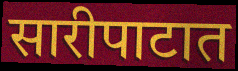
सारीपाटात